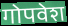
गोपवेश